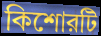
কিশোরটি